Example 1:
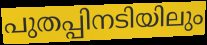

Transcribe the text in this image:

പുതപ്പിനടിയിലും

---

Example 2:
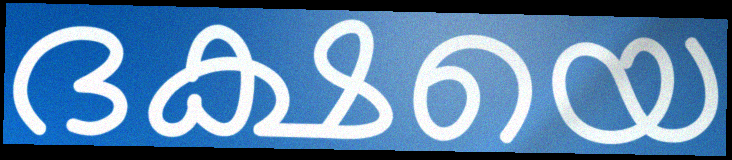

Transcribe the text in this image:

ദക്ഷയെ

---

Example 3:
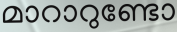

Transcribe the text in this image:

മാറാറുണ്ടോ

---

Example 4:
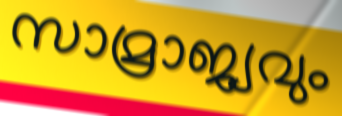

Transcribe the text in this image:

സാമ്രാജ്യവും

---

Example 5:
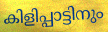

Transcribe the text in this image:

കിളിപ്പാട്ടിനും